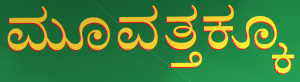
ಮೂವತ್ತಕ್ಕೂ